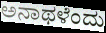
ಅನಾಥಳೆಂದು